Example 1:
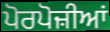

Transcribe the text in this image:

ਪੋਰਪੋਜ਼ੀਆਂ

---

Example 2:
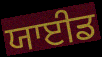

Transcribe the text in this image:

ਯਾਈਡ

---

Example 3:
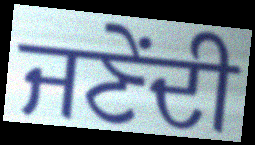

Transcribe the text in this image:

ਜਣੇਂਦੀ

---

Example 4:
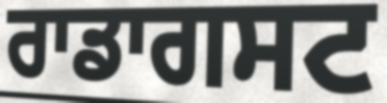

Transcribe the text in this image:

ਰਾਡਾਗਸਟ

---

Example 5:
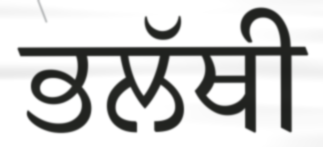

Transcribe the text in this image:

ਭਲੱਥੀ